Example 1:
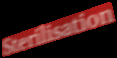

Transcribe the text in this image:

Sterilisation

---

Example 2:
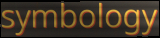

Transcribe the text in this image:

symbology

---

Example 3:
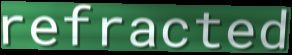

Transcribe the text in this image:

refracted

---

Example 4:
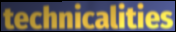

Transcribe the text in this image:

technicalities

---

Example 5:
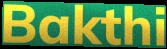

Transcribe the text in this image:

Bakthi